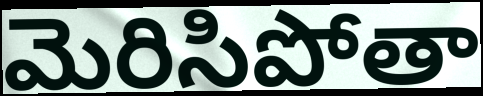
మెరిసిపోతా